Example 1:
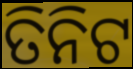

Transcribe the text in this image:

ତିନିଟ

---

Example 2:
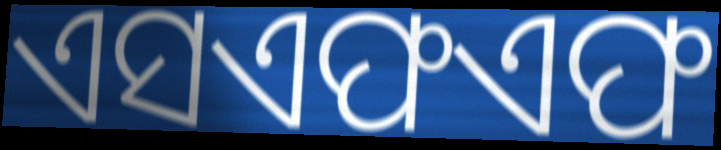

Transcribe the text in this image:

ଏସଏଫଏଫ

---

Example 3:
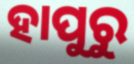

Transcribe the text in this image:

ହାପୁରୁ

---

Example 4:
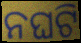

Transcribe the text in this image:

ନଘଟି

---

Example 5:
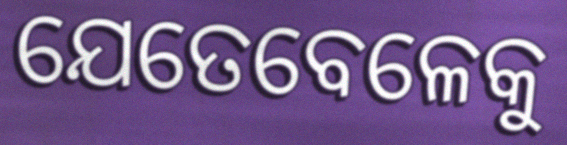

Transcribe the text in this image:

ଯେତେବେଳେକୁ